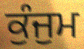
ਕੁੰਜੁਮ